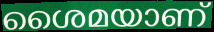
ശൈമയാണ്